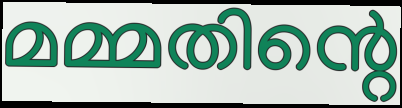
മമ്മതിന്റെ